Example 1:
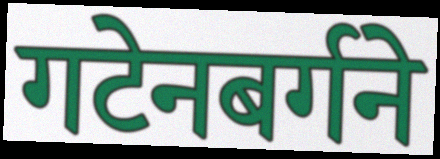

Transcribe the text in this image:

गटेनबर्गने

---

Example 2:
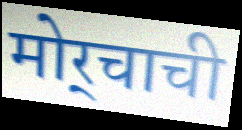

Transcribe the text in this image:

मोर्चाची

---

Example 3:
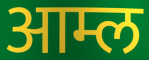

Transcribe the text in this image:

आम्‍ल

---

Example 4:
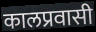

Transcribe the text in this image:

कालप्रवासी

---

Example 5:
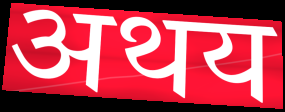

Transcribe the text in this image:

अथय